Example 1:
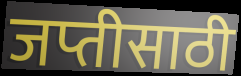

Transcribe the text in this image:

जप्तीसाठी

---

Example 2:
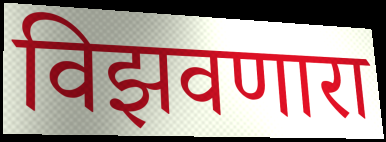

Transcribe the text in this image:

विझवणारा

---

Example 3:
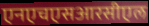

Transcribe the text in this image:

एनएचएसआरसीएल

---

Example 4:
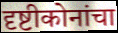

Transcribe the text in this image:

दृष्टीकोनांचा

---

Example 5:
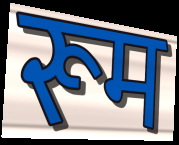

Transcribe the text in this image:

रूम